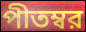
পীতম্বর